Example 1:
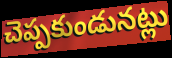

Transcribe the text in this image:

చెప్పకుండునట్లు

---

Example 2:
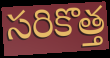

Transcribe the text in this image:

సరికొత్త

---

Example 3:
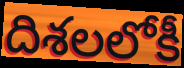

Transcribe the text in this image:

దిశలలోకీ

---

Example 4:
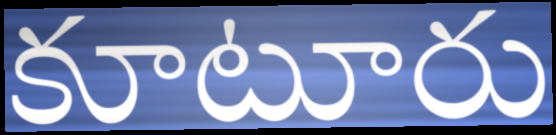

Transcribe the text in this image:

కూటూరు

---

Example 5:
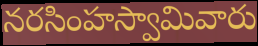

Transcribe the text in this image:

నరసింహస్వామివారు